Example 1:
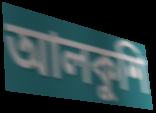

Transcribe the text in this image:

আলকুশি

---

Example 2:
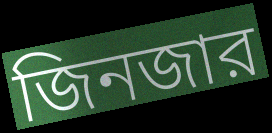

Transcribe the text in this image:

জিনজার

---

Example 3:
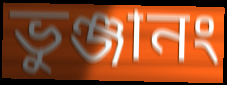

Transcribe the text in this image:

ভুঞ্জানং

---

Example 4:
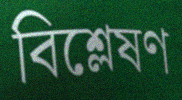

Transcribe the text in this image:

বিশ্লেষণ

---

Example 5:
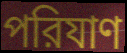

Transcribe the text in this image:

পরিযাণ